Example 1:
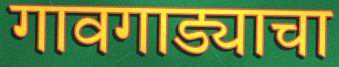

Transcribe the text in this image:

गावगाड्याचा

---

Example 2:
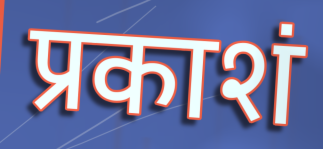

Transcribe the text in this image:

प्रकाशं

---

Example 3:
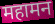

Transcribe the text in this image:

महामन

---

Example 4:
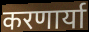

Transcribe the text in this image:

करणार्या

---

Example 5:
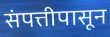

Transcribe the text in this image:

संपत्तीपासून